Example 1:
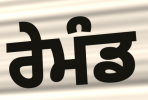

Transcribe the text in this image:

ਰੇਮੰਡ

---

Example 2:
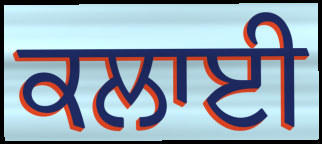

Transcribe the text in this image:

ਕਲਾਈ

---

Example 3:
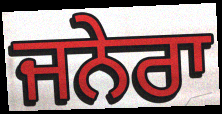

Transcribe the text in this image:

ਜਨੇਰਾ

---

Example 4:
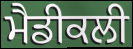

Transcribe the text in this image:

ਮੈਡੀਕਲੀ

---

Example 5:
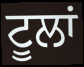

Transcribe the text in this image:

ਟੂਲਾਂ